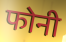
फोनी